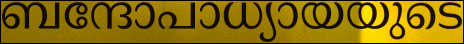
ബന്ദോപാധ്യായയുടെ